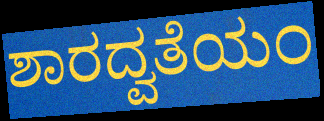
ಶಾರದ್ವತೆಯಂ